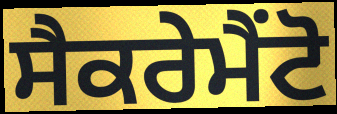
ਸੈਕਰੇਮੈਂਟੋ